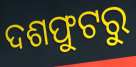
ଦଶଫୁଟରୁ